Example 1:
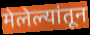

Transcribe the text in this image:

मेलेल्यांतून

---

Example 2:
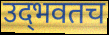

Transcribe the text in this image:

उद्‌भवतच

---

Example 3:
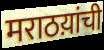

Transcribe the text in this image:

मराठय़ांची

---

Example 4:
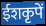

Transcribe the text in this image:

ईशकृपें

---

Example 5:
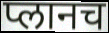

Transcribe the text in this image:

प्लानच